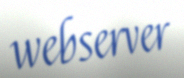
webserver